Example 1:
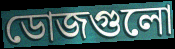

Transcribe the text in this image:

ডোজগুলো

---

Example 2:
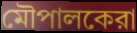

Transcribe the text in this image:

মৌপালকেরা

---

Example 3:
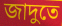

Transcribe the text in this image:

জাদুতে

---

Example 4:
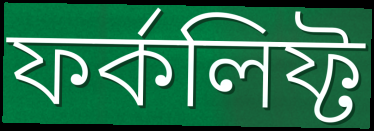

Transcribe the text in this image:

ফর্কলিফ্ট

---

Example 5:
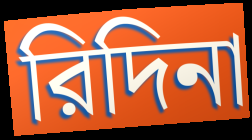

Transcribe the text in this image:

রিদিনা